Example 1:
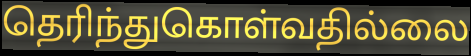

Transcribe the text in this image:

தெரிந்துகொள்வதில்லை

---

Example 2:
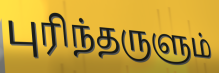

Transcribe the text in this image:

புரிந்தருளும்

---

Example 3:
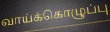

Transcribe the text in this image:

வாய்க்கொழுப்பு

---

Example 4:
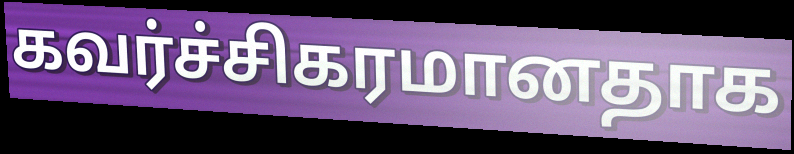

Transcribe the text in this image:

கவர்ச்சிகரமானதாக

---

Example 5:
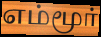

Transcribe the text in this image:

எம்மூர்